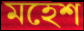
মহেশ